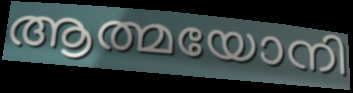
ആത്മയോനി